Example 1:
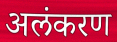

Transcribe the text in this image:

अलंकरण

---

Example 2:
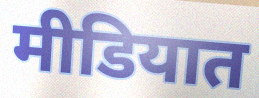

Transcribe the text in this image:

मीडियात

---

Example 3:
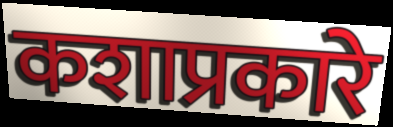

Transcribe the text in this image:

कशाप्रकारे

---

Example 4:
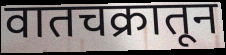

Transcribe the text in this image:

वातचक्रातून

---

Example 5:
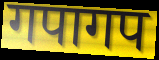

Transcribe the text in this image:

गपागप